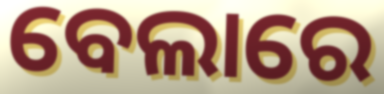
ବେଲାରେ